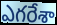
ఎగరేశా